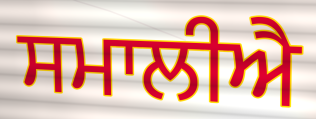
ਸਮਾਲੀਐ